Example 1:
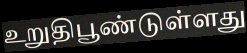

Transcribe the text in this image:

உறுதிபூண்டுள்ளது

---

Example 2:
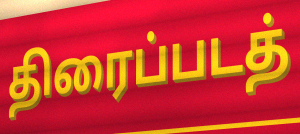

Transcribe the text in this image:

திரைப்படத்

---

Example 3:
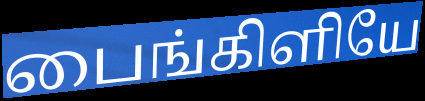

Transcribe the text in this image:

பைங்கிளியே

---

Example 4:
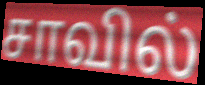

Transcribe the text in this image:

சாவில்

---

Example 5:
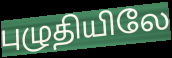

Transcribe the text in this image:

புழுதியிலே